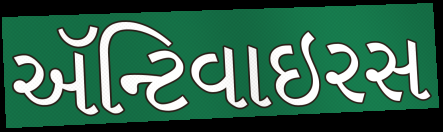
ઍન્ટિવાઇરસ